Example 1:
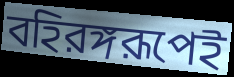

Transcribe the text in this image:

বহিরঙ্গরূপেই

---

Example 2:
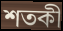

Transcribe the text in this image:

শতকী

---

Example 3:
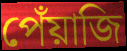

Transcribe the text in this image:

পেঁয়াজি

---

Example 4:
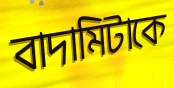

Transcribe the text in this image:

বাদামিটাকে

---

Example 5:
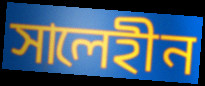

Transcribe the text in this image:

সালেহীন